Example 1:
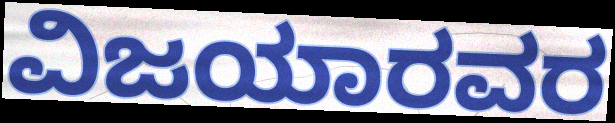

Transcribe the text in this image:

ವಿಜಯಾರವರ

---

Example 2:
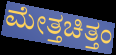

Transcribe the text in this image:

ಮೇತ್ತಚಿತ್ತಂ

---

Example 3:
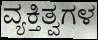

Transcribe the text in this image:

ವ್ಯಕ್ತಿತ್ವಗಳ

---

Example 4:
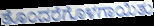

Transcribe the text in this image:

ತೊಂದರೆಗೊಳಗಾಯಿತು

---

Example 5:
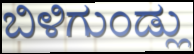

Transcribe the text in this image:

ಬಿಳಿಗುಂಡ್ಲು